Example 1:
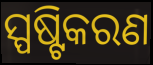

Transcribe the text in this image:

ସ୍ପଷ୍ଟିକରଣ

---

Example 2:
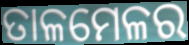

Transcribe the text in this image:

ତାଳମେଳର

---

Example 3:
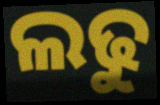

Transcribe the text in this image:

ଲଢୁ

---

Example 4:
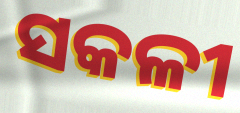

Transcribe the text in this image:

ସକଳୀ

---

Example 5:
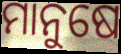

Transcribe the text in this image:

ମାନୁଷେ